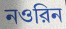
নওরিন